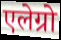
एलेग्रो